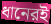
ধানেরই